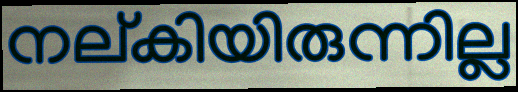
നല്കിയിരുന്നില്ല